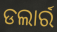
ଡଲାର୍ର